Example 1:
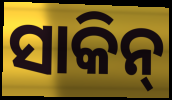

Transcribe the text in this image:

ସାକିନ୍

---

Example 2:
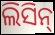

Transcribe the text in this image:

ଲିସିନ୍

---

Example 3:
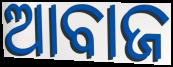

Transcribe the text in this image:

ଆବାଜ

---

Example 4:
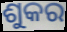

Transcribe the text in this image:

ଶୁକର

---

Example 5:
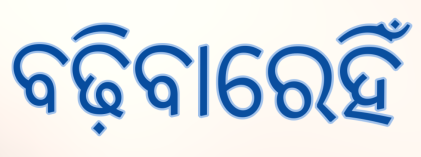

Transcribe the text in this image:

ବଢ଼ିବାରେହିଁ